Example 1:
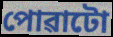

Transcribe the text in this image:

পোৱাটো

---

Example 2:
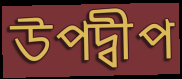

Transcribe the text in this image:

উপদ্বীপ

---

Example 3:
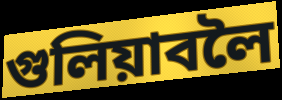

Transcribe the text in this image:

গুলিয়াবলৈ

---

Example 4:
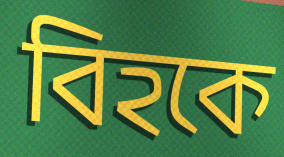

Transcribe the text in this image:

বিহকে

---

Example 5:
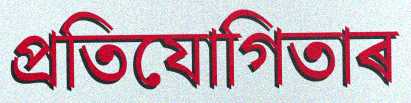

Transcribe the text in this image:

প্ৰতিযোগিতাৰ